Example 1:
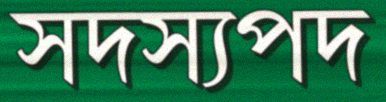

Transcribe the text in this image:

সদস্যপদ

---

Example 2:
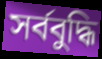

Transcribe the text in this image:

সৰ্ববুদ্ধি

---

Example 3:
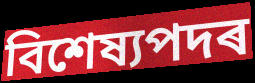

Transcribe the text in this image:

বিশেষ্যপদৰ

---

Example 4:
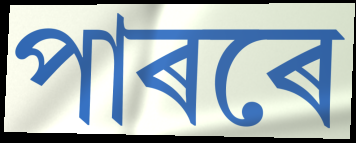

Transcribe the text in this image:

পাৰৰে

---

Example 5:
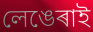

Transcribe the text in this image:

লেঙেৰাই